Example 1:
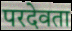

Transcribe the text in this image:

परदेवता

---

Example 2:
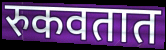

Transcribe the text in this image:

रुकवतात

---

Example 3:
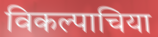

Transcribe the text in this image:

विकल्पाचिया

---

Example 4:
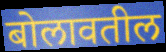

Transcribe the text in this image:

बोलावतील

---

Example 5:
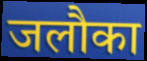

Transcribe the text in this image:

जलौका